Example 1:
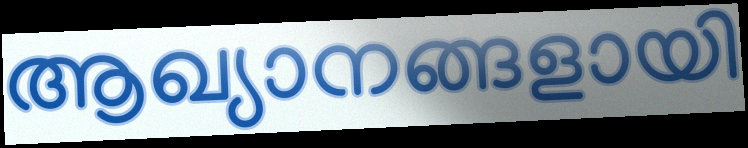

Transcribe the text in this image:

ആഖ്യാനങ്ങളായി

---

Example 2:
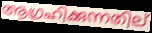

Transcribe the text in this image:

ആഗ്രഹിക്കുന്നതില്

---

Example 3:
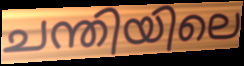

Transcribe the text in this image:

ചന്തിയിലെ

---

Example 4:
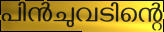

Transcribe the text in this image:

പിൻചുവടിന്റെ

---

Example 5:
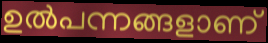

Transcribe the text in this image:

ഉൽപന്നങ്ങളാണ്